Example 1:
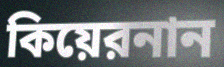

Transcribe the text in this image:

কিয়েরনান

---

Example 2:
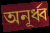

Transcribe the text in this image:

অনূর্ধ্ব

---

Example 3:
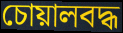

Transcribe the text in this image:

চোয়ালবদ্ধ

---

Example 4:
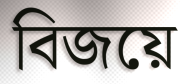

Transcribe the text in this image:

বিজয়ে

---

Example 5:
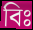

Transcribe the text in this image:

বিঃ